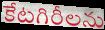
కేటగిరీలను